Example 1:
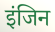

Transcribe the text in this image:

इंजिन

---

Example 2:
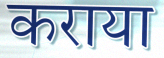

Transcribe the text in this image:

कराया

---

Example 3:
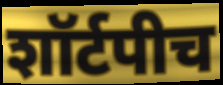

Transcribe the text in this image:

शॉर्टपीच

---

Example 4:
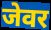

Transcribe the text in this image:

जेवर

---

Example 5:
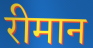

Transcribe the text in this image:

रीमान